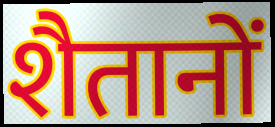
शैतानों